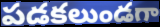
పడకలుండగా